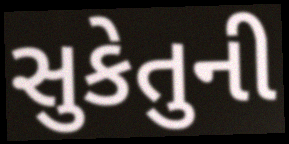
સુકેતુની